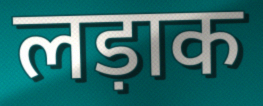
लड़ाक